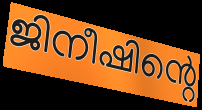
ജിനീഷിന്റെ